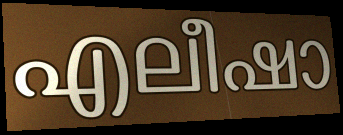
എലീഷാ